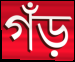
গঁড়